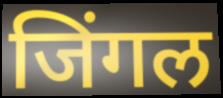
जिंगल